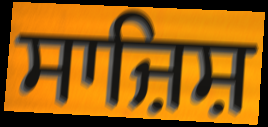
ਸਾਜ਼ਿਸ਼